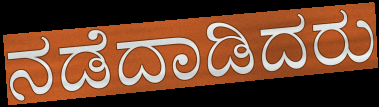
ನಡೆದಾಡಿದರು